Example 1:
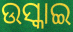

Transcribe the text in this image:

ଉସ୍କାଇ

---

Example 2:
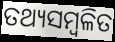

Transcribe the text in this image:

ତଥ୍ୟସମ୍ୱଳିତ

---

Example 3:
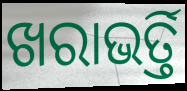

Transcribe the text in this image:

ଖରାଭର୍ତ୍ତି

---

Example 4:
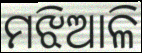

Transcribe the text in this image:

ମଝିଆଳି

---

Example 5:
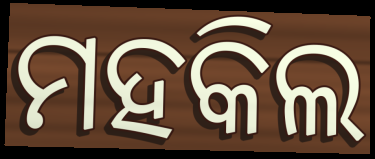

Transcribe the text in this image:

ମହକିଲ